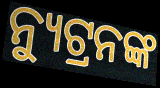
ନ୍ୟୁଟ୍ରନଙ୍କ